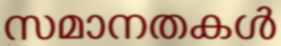
സമാനതകൾ